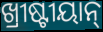
ଖ୍ରୀଷ୍ଟୀୟାନ୍